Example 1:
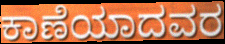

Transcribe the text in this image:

ಕಾಣೆಯಾದವರ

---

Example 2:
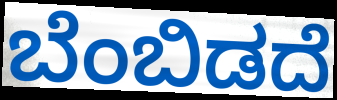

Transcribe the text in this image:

ಬೆಂಬಿಡದೆ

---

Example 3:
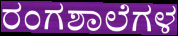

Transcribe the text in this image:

ರಂಗಶಾಲೆಗಳ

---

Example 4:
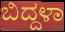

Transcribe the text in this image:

ಬಿದ್ದಳಾ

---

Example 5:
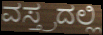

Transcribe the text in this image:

ವಸ್ತ್ರದಲ್ಲಿ